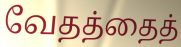
வேதத்தைத்